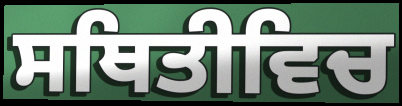
ਸਥਿਤੀਵਿਚ